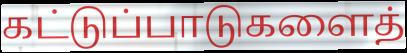
கட்டுப்பாடுகளைத்